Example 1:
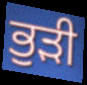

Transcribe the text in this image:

ਭੁੜੀ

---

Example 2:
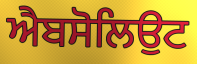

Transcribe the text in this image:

ਐਬਸੋਲਿਉਟ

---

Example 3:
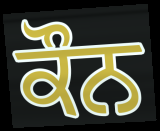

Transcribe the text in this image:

ਕੌਨ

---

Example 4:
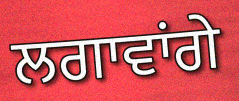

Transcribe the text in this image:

ਲਗਾਵਾਂਗੇ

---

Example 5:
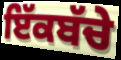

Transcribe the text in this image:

ਇੱਕਬੱਚੇ